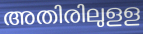
അതിരിലുളള